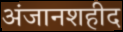
अंजानशहीद